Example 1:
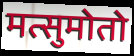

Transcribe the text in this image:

मत्सुमोतो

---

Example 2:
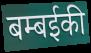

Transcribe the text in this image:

बम्बईकी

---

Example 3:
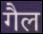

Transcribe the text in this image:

गैल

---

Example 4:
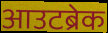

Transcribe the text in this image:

आउटब्रेक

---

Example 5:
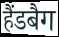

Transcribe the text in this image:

हैंडबैग